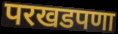
परखडपणा